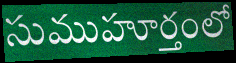
సుముహూర్తంలో